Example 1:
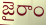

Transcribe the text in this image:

జైరాం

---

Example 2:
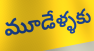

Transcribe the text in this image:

మూడేళ్ళకు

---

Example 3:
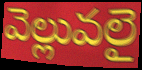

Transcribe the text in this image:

వెల్లువలై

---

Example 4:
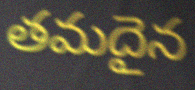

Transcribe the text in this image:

తమదైన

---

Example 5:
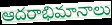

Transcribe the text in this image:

ఆదరాభిమానాలు